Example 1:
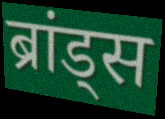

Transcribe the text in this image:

ब्रांड्स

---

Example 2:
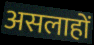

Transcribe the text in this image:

असलाहों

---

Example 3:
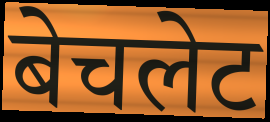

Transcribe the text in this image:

बेचलेट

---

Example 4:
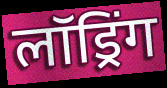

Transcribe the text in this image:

लॉड्रिंग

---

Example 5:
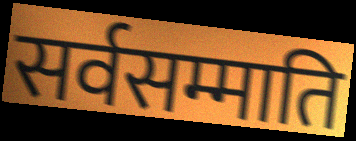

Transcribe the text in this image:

सर्वसम्माति